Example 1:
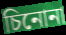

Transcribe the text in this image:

চিনোনা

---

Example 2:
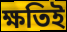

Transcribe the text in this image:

ক্ষতিই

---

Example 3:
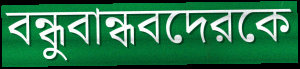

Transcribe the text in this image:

বন্ধুবান্ধবদেরকে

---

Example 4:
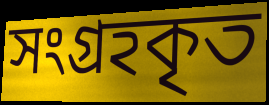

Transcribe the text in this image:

সংগ্রহকৃত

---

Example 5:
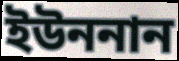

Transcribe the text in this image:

ইউননান